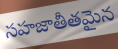
సహజాతీతమైన